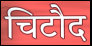
चिटौद